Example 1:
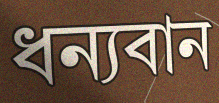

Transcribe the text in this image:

ধন্যবান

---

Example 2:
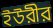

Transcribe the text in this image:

ইউরীর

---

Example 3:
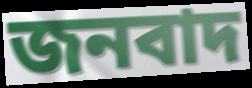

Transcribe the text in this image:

জনবাদ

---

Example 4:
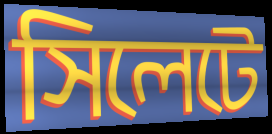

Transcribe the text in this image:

সিলেটে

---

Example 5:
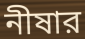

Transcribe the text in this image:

নীষার